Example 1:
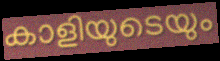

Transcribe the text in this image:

കാളിയുടെയും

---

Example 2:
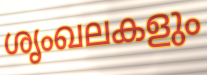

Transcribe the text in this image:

ശൃംഖലകളും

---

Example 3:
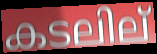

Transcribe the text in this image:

കടലില്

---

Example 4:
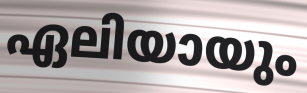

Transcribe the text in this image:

ഏലിയായും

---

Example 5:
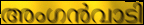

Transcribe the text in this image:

അംഗൻവാടി